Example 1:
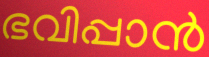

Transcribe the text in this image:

ഭവിപ്പാൻ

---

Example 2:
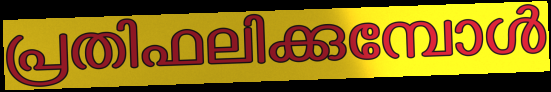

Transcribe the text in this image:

പ്രതിഫലിക്കുമ്പോൾ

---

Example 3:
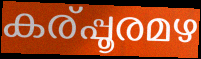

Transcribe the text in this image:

കര്പ്പൂരമഴ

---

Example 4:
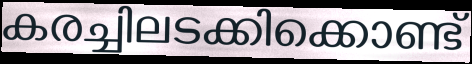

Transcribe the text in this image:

കരച്ചിലടക്കിക്കൊണ്ട്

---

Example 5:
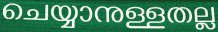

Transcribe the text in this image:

ചെയ്യാനുള്ളതല്ല